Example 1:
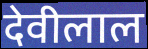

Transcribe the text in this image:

देवीलाल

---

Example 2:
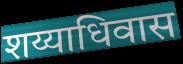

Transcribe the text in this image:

शय्याधिवास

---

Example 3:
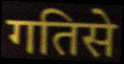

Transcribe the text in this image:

गतिसे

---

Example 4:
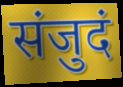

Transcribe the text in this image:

संजुदं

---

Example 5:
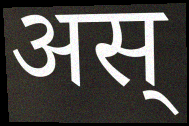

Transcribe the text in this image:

अस्